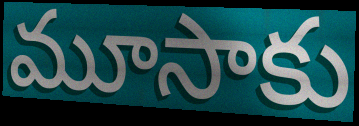
మూసాకు